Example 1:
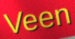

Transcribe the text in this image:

Veen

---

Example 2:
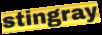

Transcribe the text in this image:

stingray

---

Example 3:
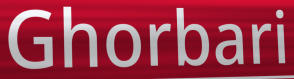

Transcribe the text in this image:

Ghorbari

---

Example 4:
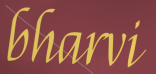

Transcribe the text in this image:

bharvi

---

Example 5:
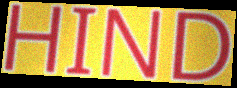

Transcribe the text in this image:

HIND